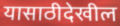
यासाठीदेखील